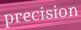
precision